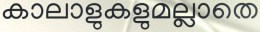
കാലാളുകളുമല്ലാതെ